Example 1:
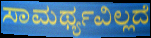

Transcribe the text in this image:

ಸಾಮರ್ಥ್ಯವಿಲ್ಲದೆ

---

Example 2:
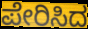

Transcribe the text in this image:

ಪೇರಿಸಿದ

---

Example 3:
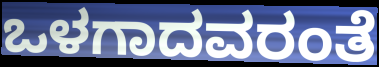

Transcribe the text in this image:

ಒಳಗಾದವರಂತೆ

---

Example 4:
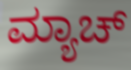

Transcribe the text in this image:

ಮ್ಯಾಚ್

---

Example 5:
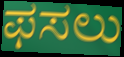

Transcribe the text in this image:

ಫಸಲು